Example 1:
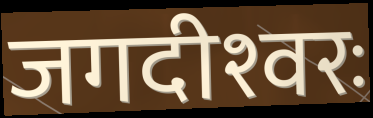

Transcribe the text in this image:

जगदीश्वरः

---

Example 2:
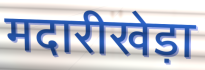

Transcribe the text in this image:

मदारीखेड़ा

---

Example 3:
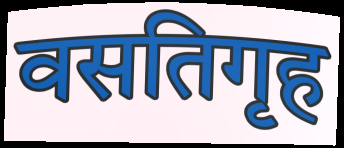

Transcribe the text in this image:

वसतिगृह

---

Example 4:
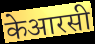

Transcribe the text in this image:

केआरसी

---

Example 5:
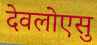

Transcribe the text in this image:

देवलोएसु